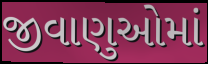
જીવાણુઓમાં